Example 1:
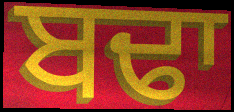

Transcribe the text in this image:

ਬਢਾ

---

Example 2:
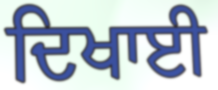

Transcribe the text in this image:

ਦਿਖਾਈ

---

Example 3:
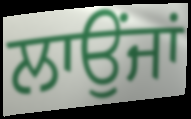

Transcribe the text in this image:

ਲਾਉਂਜਾਂ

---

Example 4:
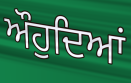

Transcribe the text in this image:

ਔਹੁਦਿਆਂ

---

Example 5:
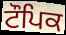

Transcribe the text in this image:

ਟੌਪਿਕ